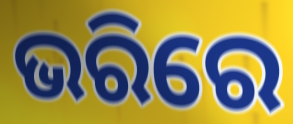
ଭରିରେ